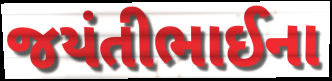
જયંતીભાઈના